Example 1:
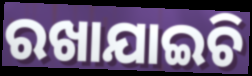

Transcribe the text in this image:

ରଖାଯାଇଚି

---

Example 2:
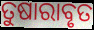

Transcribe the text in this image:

ତୁଷାରାବୃତ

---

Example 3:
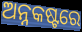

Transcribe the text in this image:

ଅନ୍ନକଷ୍ଟରେ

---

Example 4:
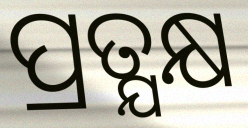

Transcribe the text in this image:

ପ୍ରତ୍ଯକ୍ଷ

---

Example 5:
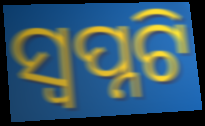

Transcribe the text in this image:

ସ୍ୱପ୍ନଟି